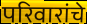
परिवारांचे